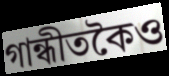
গান্ধীতকৈও